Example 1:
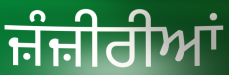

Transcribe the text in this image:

ਜ਼ੰਜ਼ੀਰੀਆਂ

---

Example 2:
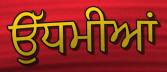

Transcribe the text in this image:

ਉੱਧਮੀਆਂ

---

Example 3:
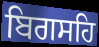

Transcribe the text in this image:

ਬਿਗਸਹਿ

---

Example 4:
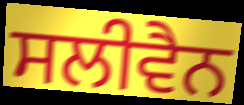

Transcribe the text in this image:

ਸਲੀਵੈਨ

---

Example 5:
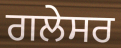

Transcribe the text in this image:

ਗਲੇਸਰ